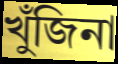
খুঁজিনা